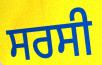
ਸਰਸੀ